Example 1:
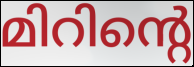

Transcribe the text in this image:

മിറിന്റെ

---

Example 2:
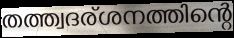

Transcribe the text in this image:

തത്ത്വദര്ശനത്തിന്റെ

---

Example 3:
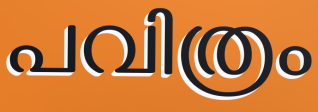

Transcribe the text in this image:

പവിത്രം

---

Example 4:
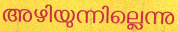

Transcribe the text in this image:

അഴിയുന്നില്ലെന്നു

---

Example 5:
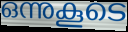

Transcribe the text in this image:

ഒന്നുകൂടെ